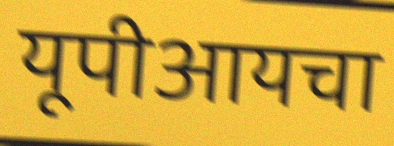
यूपीआयचा